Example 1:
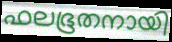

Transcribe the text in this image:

ഫലഭൂതനായി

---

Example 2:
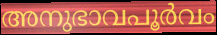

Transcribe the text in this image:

അനുഭാവപൂർവം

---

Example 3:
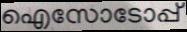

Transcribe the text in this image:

ഐസോടോപ്പ്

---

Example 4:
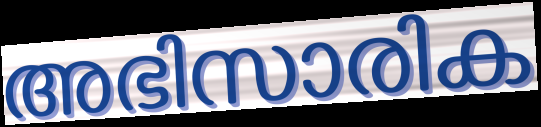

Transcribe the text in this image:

അഭിസാരിക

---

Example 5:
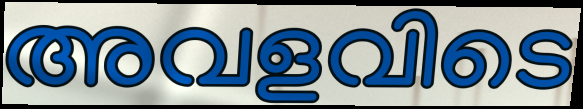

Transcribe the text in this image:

അവളവിടെ